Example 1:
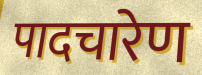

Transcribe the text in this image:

पादचारेण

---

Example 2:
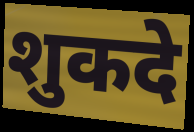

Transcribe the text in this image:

शुकदे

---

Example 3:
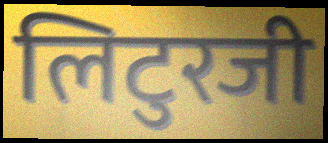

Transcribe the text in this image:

लिटुरजी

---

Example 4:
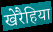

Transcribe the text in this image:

खेरैहिया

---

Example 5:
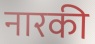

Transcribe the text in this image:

नारकी